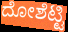
ದೋಶೆಟ್ಟಿ